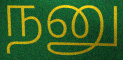
நனு